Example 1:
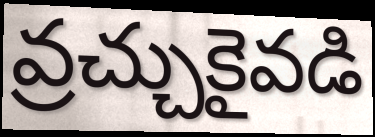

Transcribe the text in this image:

వ్రచ్చుకైవడి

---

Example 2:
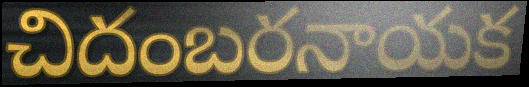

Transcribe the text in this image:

చిదంబరనాయక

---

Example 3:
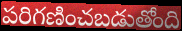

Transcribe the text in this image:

పరిగణించబడుతోంది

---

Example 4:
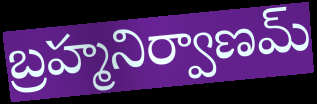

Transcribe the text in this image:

బ్రహ్మనిర్వాణమ్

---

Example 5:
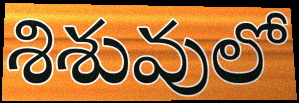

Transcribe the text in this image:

శిశువులో